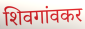
शिवगांवकर